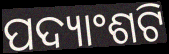
ପଦ୍ୟାଂଶଟି